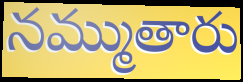
నమ్ముతారు